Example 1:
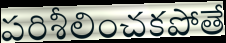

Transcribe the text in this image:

పరిశీలించకపోతే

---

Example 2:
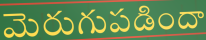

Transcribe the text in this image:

మెరుగుపడిందా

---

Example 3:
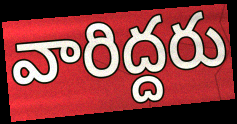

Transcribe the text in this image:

వారిద్దరు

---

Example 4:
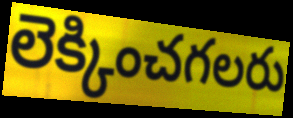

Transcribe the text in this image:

లెక్కించగలరు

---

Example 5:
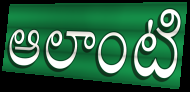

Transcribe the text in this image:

ఆలాంటి